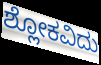
ಶ್ಲೋಕವಿದು